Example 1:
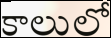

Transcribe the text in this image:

కాలులో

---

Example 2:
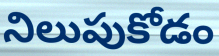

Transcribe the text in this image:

నిలుపుకోడం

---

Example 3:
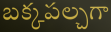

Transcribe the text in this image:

బక్కపల్చగా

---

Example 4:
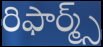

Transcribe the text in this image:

రిఫార్మ్స్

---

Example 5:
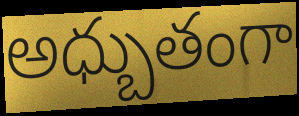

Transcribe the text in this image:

అధ్బుతంగా